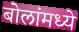
बोलांमध्ये